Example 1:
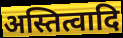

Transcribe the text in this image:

अस्तित्वादि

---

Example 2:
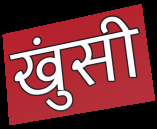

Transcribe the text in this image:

खुंसी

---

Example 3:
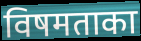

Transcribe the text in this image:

विषमताका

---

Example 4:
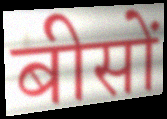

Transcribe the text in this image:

बीसों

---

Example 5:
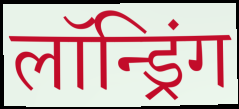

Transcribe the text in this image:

लॉन्ड्रिंग